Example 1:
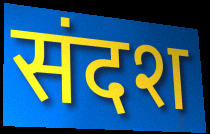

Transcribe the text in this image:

संदश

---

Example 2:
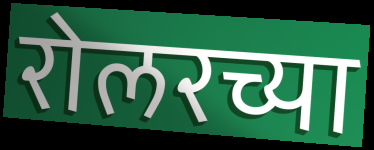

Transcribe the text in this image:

रोलरच्या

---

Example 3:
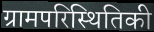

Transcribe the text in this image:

ग्रामपरिस्थितिकी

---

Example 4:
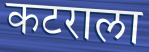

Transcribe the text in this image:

कटराला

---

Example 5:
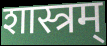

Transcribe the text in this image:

शास्त्रम्